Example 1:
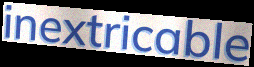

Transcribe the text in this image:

inextricable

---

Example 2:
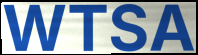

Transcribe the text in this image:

WTSA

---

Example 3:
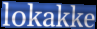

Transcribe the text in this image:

lokakke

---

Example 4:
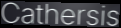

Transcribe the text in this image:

Cathersis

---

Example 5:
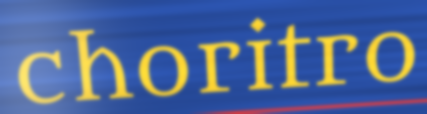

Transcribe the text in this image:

choritro